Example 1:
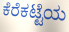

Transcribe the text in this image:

ಕೆರೆಕಟ್ಟೆಯ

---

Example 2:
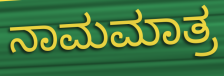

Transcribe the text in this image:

ನಾಮಮಾತ್ರ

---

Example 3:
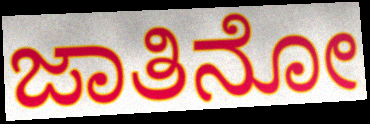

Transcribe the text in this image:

ಜಾತಿನೋ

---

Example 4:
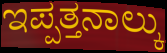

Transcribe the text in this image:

ಇಪ್ಪತ್ತನಾಲ್ಕು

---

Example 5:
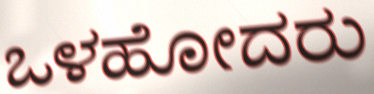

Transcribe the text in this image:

ಒಳಹೋದರು